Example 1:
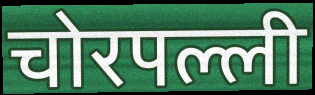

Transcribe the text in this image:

चोरपल्ली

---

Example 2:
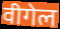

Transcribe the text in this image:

वीगेल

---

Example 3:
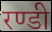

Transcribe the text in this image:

रण्डी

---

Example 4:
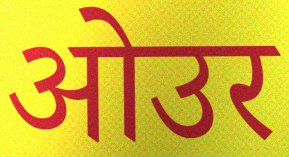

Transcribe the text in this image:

ओउर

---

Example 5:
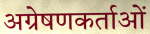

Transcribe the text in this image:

अग्रेषणकर्ताओं